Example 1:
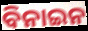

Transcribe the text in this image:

ବିନାଇନ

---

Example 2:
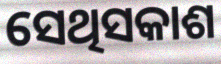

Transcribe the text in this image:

ସେଥିସକାଶ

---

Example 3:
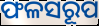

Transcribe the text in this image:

ଫଳସରୂପ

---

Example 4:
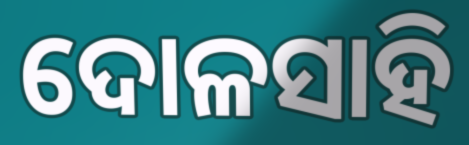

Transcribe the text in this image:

ଦୋଳସାହି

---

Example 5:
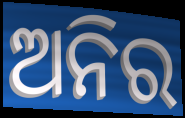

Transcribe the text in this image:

ଅନିର